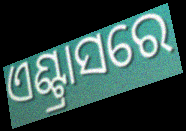
ଏଣ୍ଟ୍ରାସରେ